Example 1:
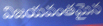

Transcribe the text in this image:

విజయవంతమైన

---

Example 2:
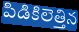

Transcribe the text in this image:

పిడికిలెత్తిన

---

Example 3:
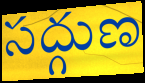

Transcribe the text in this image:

సద్గుణ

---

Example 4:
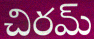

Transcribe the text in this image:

చిరమ్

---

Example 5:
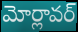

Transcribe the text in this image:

మోర్లావర్